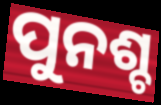
ପୁନଶ୍ଚ